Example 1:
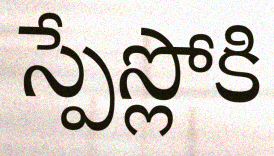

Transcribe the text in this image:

స్పేస్లోకి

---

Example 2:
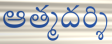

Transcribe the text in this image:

ఆత్మదర్శి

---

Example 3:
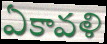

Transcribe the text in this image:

ఏకావళి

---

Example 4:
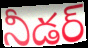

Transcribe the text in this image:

నీడర్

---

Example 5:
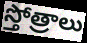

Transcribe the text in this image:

స్తోత్రాలు